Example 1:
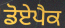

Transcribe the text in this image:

ਡੋਏਪੈਕ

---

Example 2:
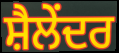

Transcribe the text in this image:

ਸ਼ੈਲੇਂਦਰ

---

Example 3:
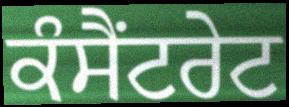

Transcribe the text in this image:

ਕੰਸੈਂਟਰੇਟ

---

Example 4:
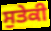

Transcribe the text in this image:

ਸੁਤੇਕੀ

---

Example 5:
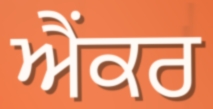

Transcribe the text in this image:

ਐਂਕਰ